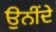
ਉਨੀਂਦੇ